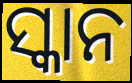
ସ୍କାନ